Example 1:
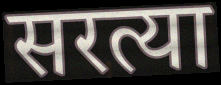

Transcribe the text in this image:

सरत्या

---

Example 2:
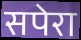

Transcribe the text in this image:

सपेरा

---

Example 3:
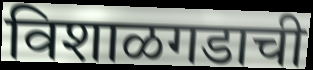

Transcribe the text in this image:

विशाळगडाची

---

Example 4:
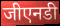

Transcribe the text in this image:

जीएनडी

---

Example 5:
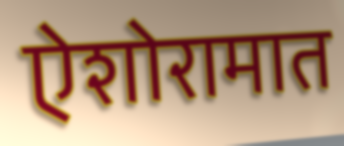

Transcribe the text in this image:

ऐशोरामात